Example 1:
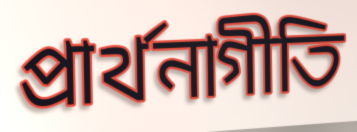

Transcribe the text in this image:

প্রার্থনাগীতি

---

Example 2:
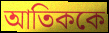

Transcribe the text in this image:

আতিককে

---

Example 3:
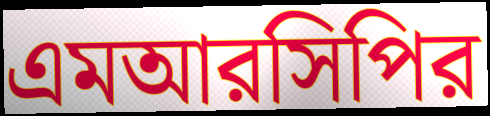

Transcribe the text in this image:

এমআরসিপির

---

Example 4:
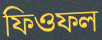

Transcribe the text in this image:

ফিওফল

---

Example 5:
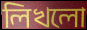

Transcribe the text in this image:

লিখলো